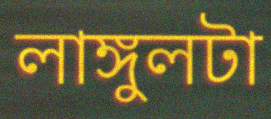
লাঙ্গুলটা